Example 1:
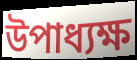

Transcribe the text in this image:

উপাধ্যক্ষ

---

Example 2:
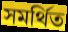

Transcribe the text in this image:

সমৰ্থিত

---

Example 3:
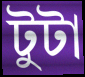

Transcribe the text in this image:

টুটা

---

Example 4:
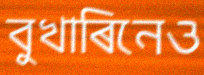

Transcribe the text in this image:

বুখাৰিনেও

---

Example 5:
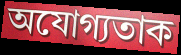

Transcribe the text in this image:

অযোগ্যতাক